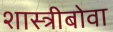
शास्त्रीबोवा